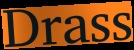
Drass